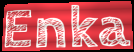
Enka